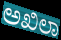
ಅಖಿಲಾ